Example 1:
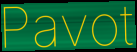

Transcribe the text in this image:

Pavot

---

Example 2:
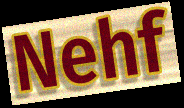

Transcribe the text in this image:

Nehf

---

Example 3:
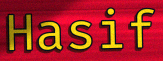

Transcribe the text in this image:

Hasif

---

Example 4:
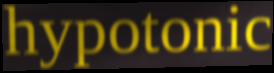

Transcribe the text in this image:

hypotonic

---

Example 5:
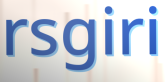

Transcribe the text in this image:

rsgiri